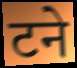
टने